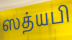
ஸத்யபி